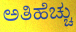
ಅತಿಹೆಚ್ಚು